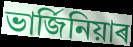
ভাৰ্জিনিয়াৰ